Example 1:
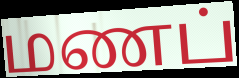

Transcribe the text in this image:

மணப்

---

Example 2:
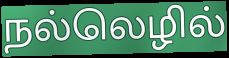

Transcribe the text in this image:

நல்லெழில்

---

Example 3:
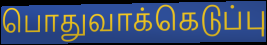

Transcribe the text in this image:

பொதுவாக்கெடுப்பு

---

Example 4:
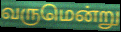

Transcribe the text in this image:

வருமென்று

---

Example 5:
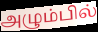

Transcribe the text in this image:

அழும்பில்